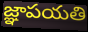
జ్ఞాపయతి